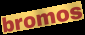
bromos